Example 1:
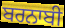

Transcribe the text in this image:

ਬਰਨਾਬੀ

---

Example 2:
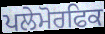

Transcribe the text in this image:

ਪਲੇਮੋਰਫਿਕ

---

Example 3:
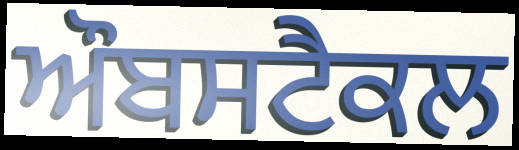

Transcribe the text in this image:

ਔਬਸਟੈਕਲ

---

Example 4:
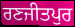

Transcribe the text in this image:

ਰਣਜੀਤਪੁਰ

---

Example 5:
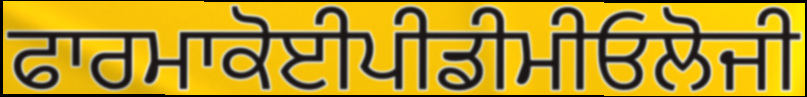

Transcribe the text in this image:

ਫਾਰਮਾਕੋਈਪੀਡੀਮੀਓਲੋਜੀ